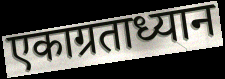
एकाग्रताध्यान